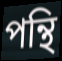
পন্থি